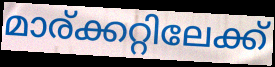
മാര്ക്കറ്റിലേക്ക്